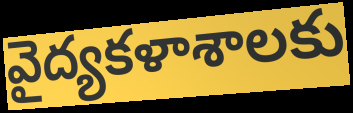
వైద్యకళాశాలకు